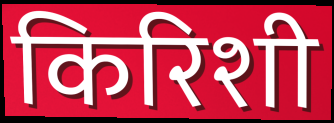
किरिशी